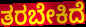
ತರಬೇಕಿದೆ